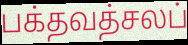
பக்தவத்சலப்